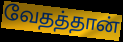
வேதத்தான்